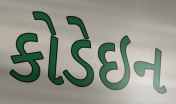
કોડેઇન